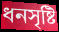
ধনসৃষ্টি